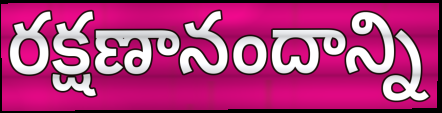
రక్షణానందాన్ని